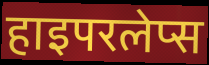
हाइपरलेप्स